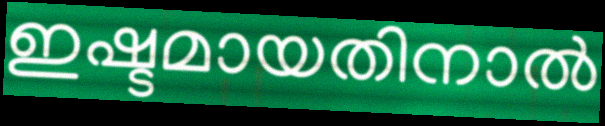
ഇഷ്ടമായതിനാൽ